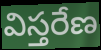
విస్తరేణ